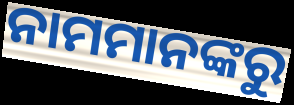
ନାମମାନଙ୍କରୁ